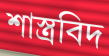
শাস্ত্ৰবিদ